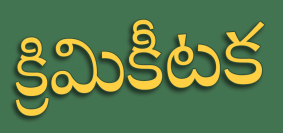
క్రిమికీటక